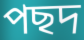
পছদ